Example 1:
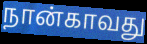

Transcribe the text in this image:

நான்காவது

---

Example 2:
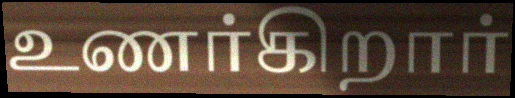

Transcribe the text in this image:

உணர்கிறார்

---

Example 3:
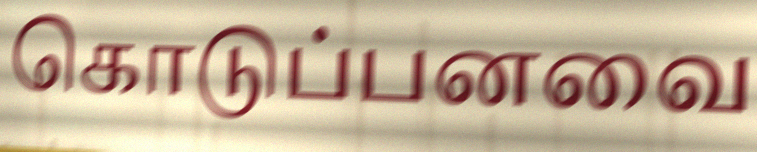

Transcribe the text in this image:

கொடுப்பனவை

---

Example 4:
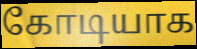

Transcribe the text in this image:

கோடியாக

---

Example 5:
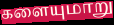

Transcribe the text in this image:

களையுமாறு